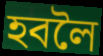
হবলৈ